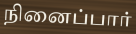
நினைப்பார்